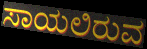
ಸಾಯಲಿರುವ